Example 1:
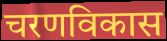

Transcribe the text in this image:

चरणविकास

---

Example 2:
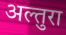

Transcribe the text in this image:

अल्तुरा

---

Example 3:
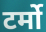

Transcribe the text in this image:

टर्मो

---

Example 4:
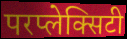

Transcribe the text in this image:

परप्लेक्सिटी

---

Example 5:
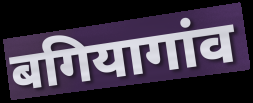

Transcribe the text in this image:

बगियागांव